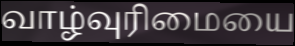
வாழ்வுரிமையை